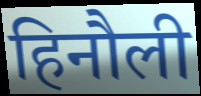
हिनौली